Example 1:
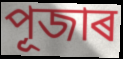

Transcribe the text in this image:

পূজাৰ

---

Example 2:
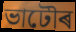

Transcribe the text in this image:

ভাটৌৰ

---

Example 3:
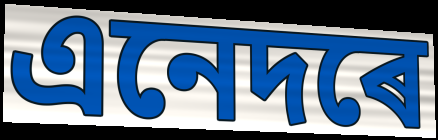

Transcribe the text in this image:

এনেদৰে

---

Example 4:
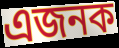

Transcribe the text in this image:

এজনক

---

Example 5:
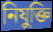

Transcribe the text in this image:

নিযুক্তি